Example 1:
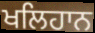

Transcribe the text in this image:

ਖਲਿਹਾਨ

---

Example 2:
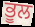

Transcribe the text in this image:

ਭੂਲ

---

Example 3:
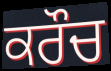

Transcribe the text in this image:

ਕਰੌਚ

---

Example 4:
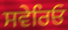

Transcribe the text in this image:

ਸਵੇਰਿਓ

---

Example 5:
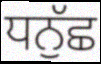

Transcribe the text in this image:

ਧਨੁੱਛ